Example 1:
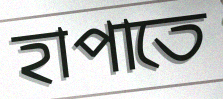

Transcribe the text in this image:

হাপাতে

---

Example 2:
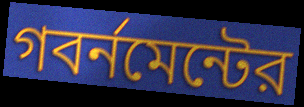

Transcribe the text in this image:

গবর্নমেন্টের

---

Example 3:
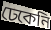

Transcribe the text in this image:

ঢেকেনি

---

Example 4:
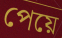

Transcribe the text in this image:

পেয়ে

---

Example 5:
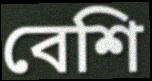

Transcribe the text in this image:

বেশি